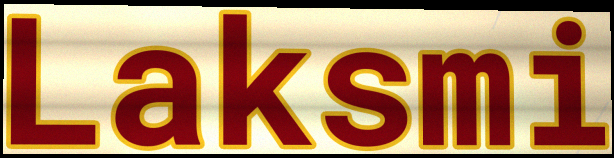
Laksmi